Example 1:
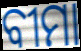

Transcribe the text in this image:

ବୀମା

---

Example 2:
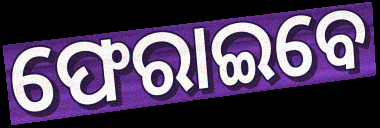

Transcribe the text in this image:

ଫେରାଇବେ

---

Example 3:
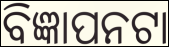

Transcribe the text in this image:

ବିଜ୍ଞାପନଟା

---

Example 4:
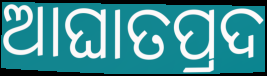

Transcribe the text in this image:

ଆଘାତପ୍ରଦ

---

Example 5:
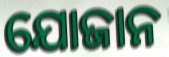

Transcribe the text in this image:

ଯୋଜାନ